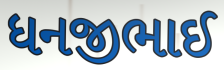
ધનજીભાઈ